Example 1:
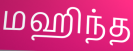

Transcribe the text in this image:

மஹிந்த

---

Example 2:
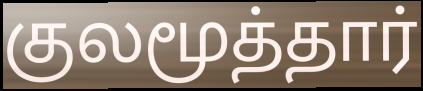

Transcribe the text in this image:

குலமூத்தார்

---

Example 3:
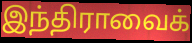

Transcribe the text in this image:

இந்திராவைக்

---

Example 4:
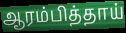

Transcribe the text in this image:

ஆரம்பித்தாய்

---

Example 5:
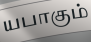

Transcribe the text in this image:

யபாகும்